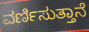
ವರ್ಣಿಸುತ್ತಾನೆ